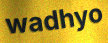
wadhyo